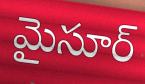
మైసూర్